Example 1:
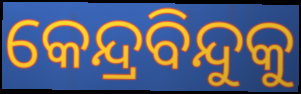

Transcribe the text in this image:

କେନ୍ଦ୍ରବିନ୍ଦୁକୁ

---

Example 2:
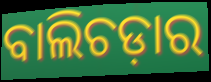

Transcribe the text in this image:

ବାଲିଚଡ଼ାର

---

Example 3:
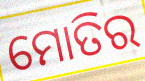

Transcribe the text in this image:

ମୋତିର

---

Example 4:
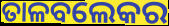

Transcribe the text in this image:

ତାଳବଲେକର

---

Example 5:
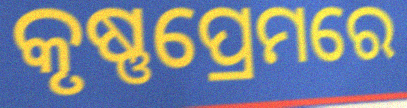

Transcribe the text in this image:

କୃଷ୍ଣପ୍ରେମରେ